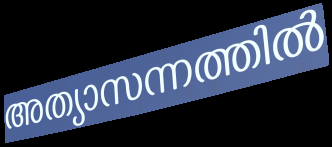
അത്യാസന്നത്തിൽ